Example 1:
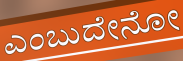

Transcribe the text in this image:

ಎಂಬುದೇನೋ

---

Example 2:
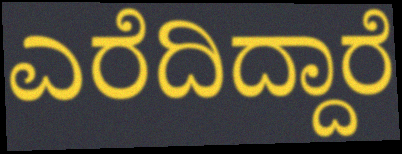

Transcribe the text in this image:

ಎರೆದಿದ್ದಾರೆ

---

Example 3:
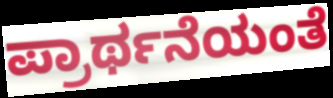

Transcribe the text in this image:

ಪ್ರಾರ್ಥನೆಯಂತೆ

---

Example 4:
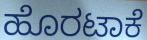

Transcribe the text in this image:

ಹೊರಟಾಕೆ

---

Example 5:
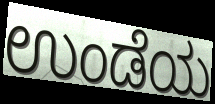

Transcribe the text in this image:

ಉಂಡೆಯ